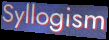
Syllogism